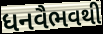
ધનવૈભવથી